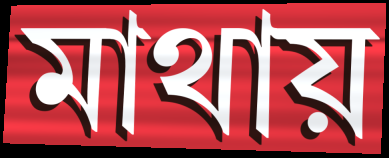
মাথায়